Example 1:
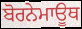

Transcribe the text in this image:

ਬੋਰਨੇਮਾਊਥ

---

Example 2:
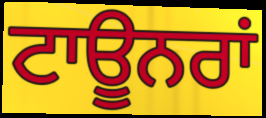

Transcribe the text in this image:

ਟਾਊਨਰਾਂ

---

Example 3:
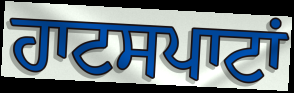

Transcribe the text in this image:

ਹਾਟਸਪਾਟਾਂ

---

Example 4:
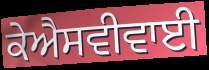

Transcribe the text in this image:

ਕੇਐਸਵੀਵਾਈ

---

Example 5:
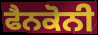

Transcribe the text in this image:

ਫੈਨਕੋਨੀ